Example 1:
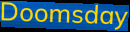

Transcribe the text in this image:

Doomsday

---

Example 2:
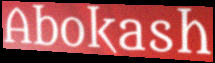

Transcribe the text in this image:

Abokash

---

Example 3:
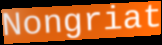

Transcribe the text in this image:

Nongriat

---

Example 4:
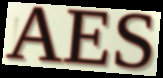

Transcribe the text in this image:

AES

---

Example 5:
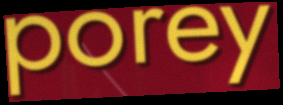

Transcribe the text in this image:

porey